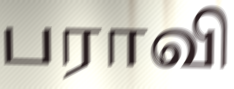
பராவி